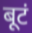
बूटं